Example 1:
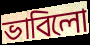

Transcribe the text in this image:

ভাবিলো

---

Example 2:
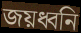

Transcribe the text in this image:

জয়ধ্বনি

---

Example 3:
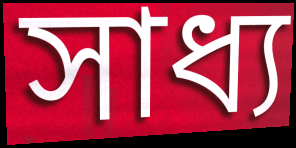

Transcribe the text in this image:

সাধ্য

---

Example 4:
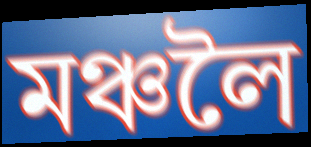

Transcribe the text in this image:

মঞ্চলৈ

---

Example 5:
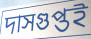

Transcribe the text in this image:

দাসগুপ্তই